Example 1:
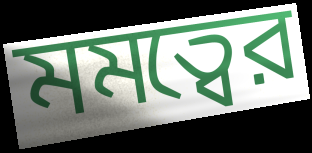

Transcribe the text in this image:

মমত্বের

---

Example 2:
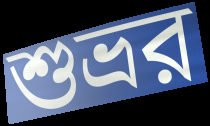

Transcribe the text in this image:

শুভ্রর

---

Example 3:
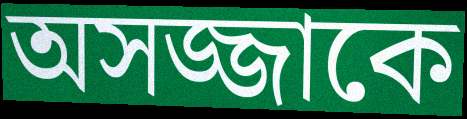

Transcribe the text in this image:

অসজ্জাকে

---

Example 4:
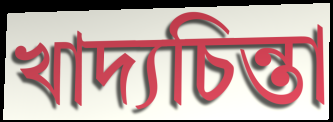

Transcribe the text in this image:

খাদ্যচিন্তা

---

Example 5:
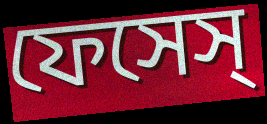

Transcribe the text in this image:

ফেসেস্